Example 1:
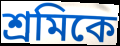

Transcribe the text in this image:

শ্রমিকে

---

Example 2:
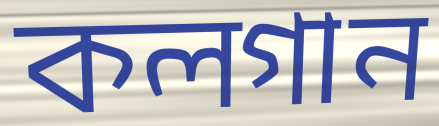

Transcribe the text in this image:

কলগান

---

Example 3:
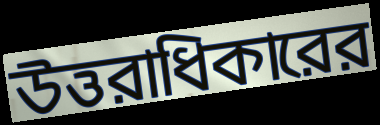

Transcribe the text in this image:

উত্তরাধিকারের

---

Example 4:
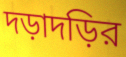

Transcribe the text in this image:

দড়াদড়ির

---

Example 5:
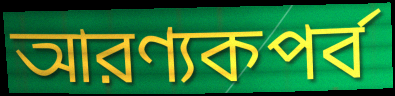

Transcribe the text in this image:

আরণ্যকপর্ব